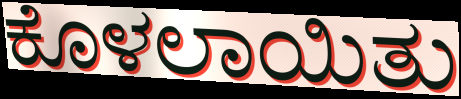
ಕೊಳಲಾಯಿತು